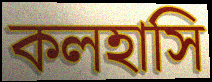
কলহাসি